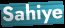
Sahiye